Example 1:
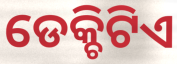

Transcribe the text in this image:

ଡେକ୍ଚିଟିଏ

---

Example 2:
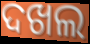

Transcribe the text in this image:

ଦଖଲ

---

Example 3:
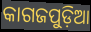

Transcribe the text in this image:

କାଗଜପୁଡ଼ିଆ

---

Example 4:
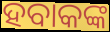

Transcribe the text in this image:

ହବାକଙ୍କ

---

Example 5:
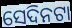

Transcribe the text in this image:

ସେଦିନଟା